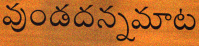
వుండదన్నమాట